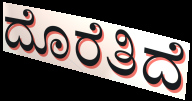
ದೊರೆತಿದೆ